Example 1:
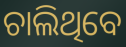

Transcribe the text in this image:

ଚାଲିଥିବେ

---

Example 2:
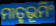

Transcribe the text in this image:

ମାତୃଭୂମିଂ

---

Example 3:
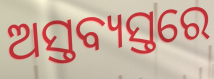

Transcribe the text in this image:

ଅସ୍ତବ୍ୟସ୍ତରେ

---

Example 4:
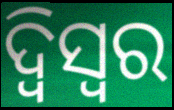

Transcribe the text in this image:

ଦ୍ଵିସ୍ଵର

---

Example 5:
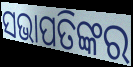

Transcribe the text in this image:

ସଭାପତିଙ୍କର